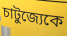
চাটুজ্যেকে